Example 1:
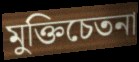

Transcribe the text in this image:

মুক্তিচেতনা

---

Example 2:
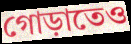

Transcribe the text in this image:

গোড়াতেও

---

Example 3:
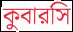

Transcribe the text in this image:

কুবারসি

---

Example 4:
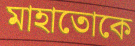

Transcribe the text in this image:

মাহাতোকে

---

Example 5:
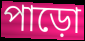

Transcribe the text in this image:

পাড়ো